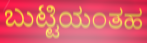
ಬುಟ್ಟಿಯಂತಹ